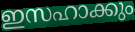
ഇസഹാക്കും